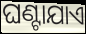
ଘଣ୍ଟାଯାଏ